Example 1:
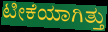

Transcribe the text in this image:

ಟೀಕೆಯಾಗಿತ್ತು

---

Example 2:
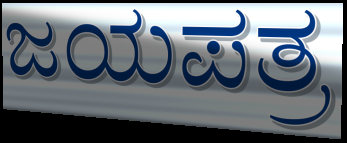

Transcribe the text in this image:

ಜಯಪತ್ರ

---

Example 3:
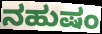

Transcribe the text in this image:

ನಹುಷಂ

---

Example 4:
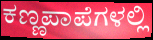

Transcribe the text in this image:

ಕಣ್ಣಪಾಪೆಗಳಲ್ಲಿ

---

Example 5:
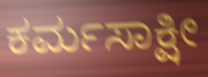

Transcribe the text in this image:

ಕರ್ಮಸಾಕ್ಷೀ